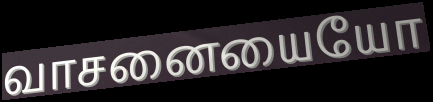
வாசனையையோ